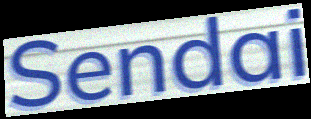
Sendai